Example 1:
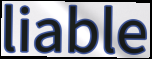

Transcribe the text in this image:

liable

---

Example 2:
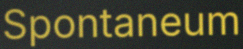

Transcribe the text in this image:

Spontaneum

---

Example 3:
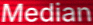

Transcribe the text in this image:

Median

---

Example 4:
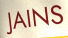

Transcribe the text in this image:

JAINS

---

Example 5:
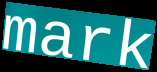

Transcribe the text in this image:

mark